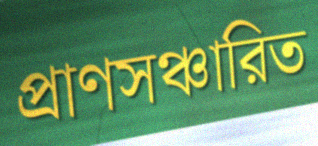
প্রাণসঞ্চারিত